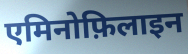
एमिनोफ़िलाइन